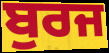
ਬੁਰਜ